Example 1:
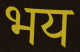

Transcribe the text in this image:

भय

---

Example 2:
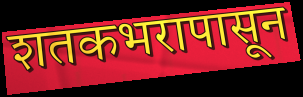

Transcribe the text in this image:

शतकभरापासून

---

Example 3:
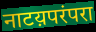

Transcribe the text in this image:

नाटय़परंपरा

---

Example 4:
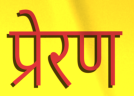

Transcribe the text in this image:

प्रेरण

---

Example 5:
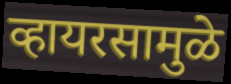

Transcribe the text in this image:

व्हायरसामुळे